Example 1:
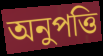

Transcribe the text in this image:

অনুপত্তি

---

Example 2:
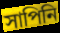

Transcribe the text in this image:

সাপিনি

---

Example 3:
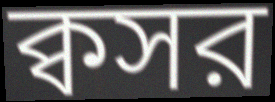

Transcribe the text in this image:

ক্বসর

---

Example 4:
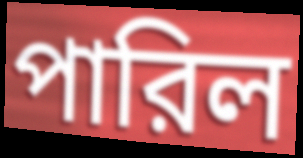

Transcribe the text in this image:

পারিল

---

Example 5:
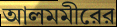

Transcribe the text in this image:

আলমমীরের